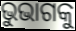
ଭୁଭାଗକୁ